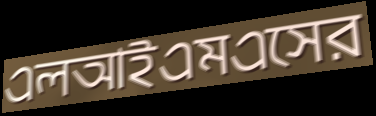
এলআইএমএসের